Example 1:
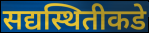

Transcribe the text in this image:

सद्यस्थितीकडे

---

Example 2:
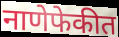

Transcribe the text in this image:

नाणेफेकीत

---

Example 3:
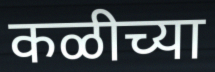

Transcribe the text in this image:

कळीच्या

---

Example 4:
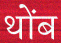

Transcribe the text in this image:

थोंब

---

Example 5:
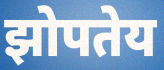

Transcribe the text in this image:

झोपतेय